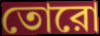
তোরো